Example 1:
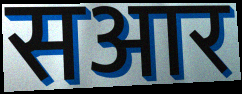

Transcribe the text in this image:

सआर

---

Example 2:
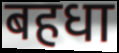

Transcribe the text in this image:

बहधा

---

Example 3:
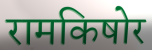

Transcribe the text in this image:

रामकिषोर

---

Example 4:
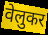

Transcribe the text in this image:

वेलुकर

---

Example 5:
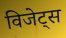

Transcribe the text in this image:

विजेट्स